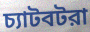
চ্যাটবটরা